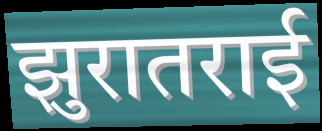
झुरातराई